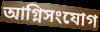
আগ্নিসংযোগ